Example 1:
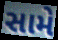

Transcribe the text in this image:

સામે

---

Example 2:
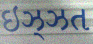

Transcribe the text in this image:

ઇઝ્ઝત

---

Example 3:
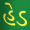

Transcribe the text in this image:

હેડ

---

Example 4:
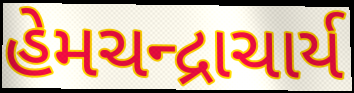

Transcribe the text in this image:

હેમચન્દ્રાચાર્ય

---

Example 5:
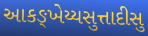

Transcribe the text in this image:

આકઙ્ખેય્યસુત્તાદીસુ